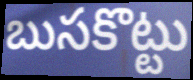
బుసకొట్టు